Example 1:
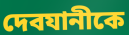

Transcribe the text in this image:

দেবযানীকে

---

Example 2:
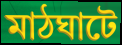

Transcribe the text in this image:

মাঠঘাটে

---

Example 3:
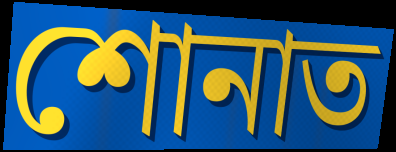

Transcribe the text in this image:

শোনাত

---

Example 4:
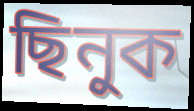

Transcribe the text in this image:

ছিনুক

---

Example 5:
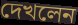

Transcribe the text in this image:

দেখলেন